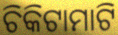
ଚିକିଟାମାଟି